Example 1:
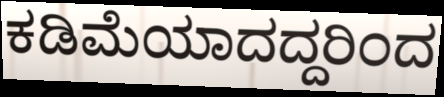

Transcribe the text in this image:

ಕಡಿಮೆಯಾದದ್ದರಿಂದ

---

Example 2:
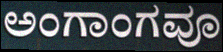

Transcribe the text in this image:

ಅಂಗಾಂಗವೂ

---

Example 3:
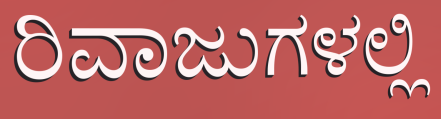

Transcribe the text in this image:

ರಿವಾಜುಗಳಲ್ಲಿ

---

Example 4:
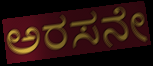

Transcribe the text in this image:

ಅರಸನೇ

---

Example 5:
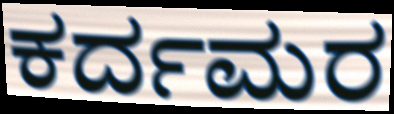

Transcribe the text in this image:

ಕರ್ದಮರ